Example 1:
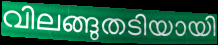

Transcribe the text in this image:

വിലങ്ങുതടിയായി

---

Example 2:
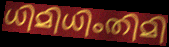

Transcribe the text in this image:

ധിമിധിംതിമി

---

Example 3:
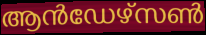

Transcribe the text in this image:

ആൻഡേഴ്സൺ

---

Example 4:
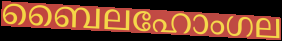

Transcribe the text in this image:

ബൈലഹോംഗല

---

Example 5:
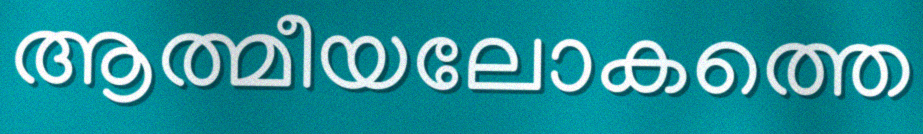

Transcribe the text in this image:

ആത്മീയലോകത്തെ